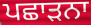
ਪਛਾੜਨਾ